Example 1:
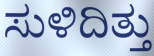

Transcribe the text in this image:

ಸುಳಿದಿತ್ತು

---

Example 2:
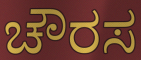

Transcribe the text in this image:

ಚೌರಸ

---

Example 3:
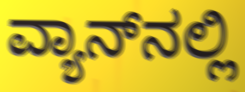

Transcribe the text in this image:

ವ್ಯಾನ್‌ನಲ್ಲಿ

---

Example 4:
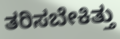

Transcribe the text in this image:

ತರಿಸಬೇಕಿತ್ತು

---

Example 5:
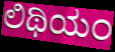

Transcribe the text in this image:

ಲಿಥಿಯಂ